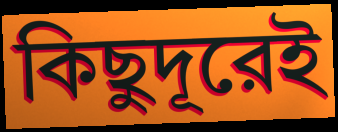
কিছুদূরেই